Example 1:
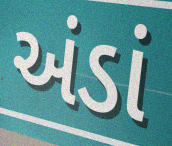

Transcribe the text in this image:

અંડાં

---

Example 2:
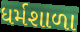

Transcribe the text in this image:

ધર્મશાળા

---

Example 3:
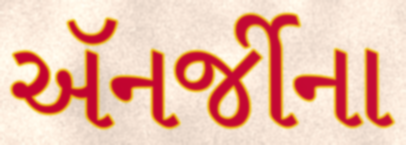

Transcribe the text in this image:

ઍનર્જીના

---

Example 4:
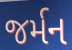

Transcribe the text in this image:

જર્મન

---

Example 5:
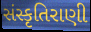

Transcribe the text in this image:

સંસ્કૃતિરાણી